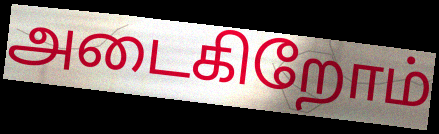
அடைகிறோம்